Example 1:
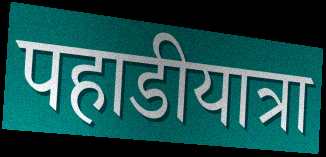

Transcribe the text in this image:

पहाडीयात्रा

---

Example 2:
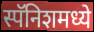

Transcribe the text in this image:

स्पॅनिशमध्ये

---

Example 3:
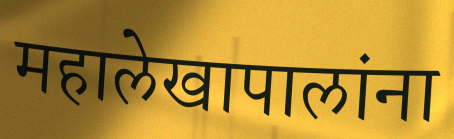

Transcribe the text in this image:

महालेखापालांना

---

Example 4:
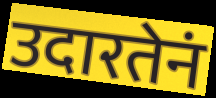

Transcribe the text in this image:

उदारतेनं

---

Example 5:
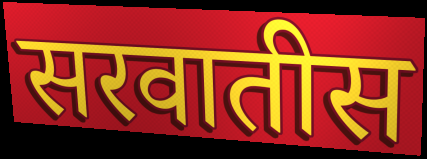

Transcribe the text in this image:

सरवातीस